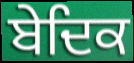
ਬੇਦਿਕ